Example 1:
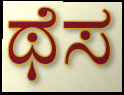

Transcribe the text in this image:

ಥೆಸ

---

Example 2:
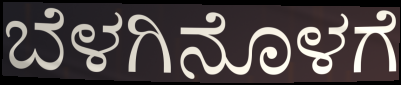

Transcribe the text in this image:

ಬೆಳಗಿನೊಳಗೆ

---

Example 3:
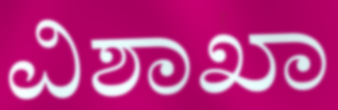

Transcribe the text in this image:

ವಿಶಾಖಾ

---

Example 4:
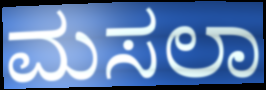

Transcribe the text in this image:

ಮಸಲಾ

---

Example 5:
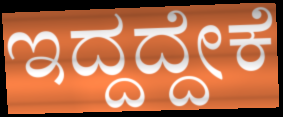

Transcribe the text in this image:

ಇದ್ದದ್ದೇಕೆ